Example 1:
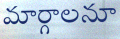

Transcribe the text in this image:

మార్గాలనూ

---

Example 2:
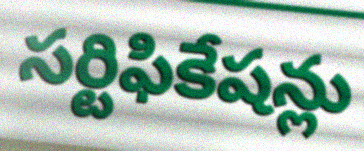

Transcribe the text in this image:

సర్టిఫికేషన్లు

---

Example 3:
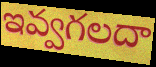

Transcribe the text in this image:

ఇవ్వగలదా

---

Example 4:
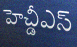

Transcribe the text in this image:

హెచ్డీఎస్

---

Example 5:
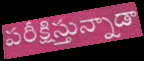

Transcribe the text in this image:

పరీక్షిస్తున్నాడా